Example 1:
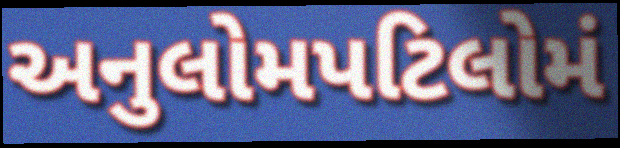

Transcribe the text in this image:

અનુલોમપટિલોમં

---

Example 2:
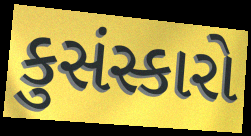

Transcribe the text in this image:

કુસંસ્કારો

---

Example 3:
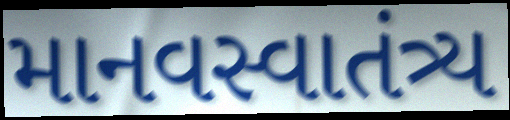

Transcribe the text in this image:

માનવસ્વાતંત્ર્ય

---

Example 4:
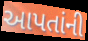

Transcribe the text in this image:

આપતાંની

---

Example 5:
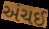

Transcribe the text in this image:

અંચઈ